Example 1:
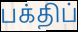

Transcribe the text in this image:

பக்திப்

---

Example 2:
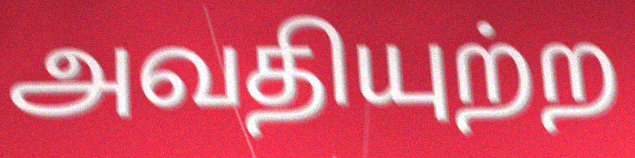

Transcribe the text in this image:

அவதியுற்ற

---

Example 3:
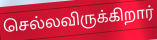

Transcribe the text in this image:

செல்லவிருக்கிறார்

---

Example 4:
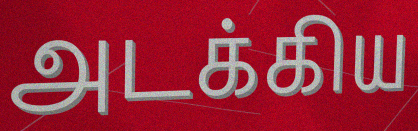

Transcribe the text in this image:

அடக்கிய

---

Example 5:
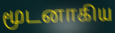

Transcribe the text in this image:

மூடனாகிய